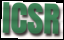
ICSR